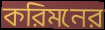
করিমনের